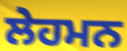
ਲੇਹਮਨ